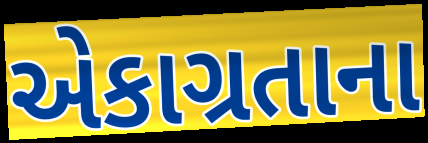
એકાગ્રતાના